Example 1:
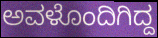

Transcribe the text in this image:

ಅವಳೊಂದಿಗಿದ್ದ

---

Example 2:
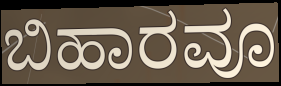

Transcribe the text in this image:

ಬಿಹಾರವೂ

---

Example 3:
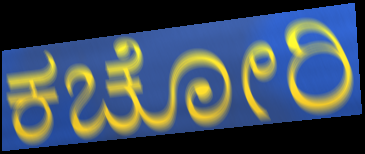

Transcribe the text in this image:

ಕಚೋರಿ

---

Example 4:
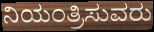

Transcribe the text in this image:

ನಿಯಂತ್ರಿಸುವರು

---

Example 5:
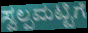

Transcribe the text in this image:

ಸ್ವಲ್ಪಮಟ್ಟಿಗೆ